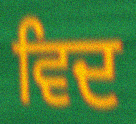
ਵਿਦ